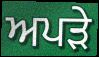
ਅਪੜੇ